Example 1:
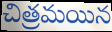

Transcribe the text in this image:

చిత్రమయిన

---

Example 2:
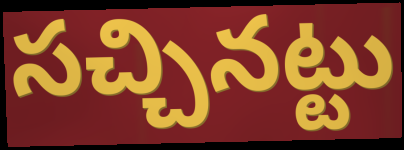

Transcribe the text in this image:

సచ్చినట్టు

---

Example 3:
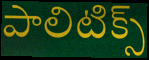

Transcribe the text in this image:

పాలిటిక్స్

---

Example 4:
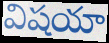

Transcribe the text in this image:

విషయా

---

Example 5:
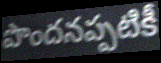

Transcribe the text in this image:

పొందనప్పటికీ